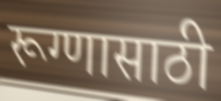
रूग्णासाठी